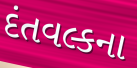
દંતવલ્કના